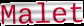
Malet